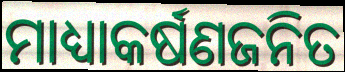
ମାଧ୍ୟାକର୍ଷଣଜନିତ